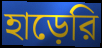
হাড়েরি